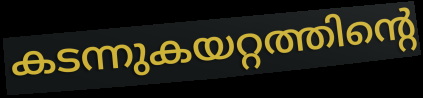
കടന്നുകയറ്റത്തിന്റെ